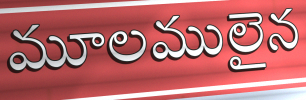
మూలములైన